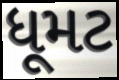
ધૂમટ